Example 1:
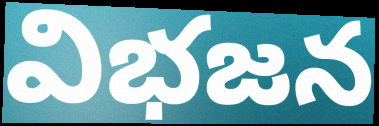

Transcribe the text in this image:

విభజన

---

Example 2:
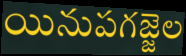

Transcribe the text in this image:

యినుపగజ్జెల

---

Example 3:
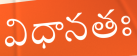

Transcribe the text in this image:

విధానతః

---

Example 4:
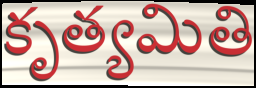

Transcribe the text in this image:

కృత్యమితి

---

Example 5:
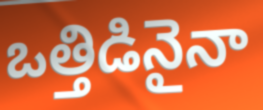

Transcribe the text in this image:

ఒత్తిడినైనా